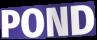
POND